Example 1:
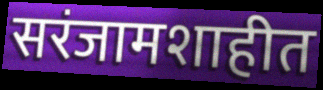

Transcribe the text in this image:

सरंजामशाहीत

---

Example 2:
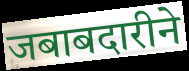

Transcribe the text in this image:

जबाबदारीने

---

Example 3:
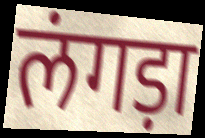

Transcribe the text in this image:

लंगड़ा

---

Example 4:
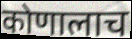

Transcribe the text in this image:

कोणालाच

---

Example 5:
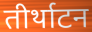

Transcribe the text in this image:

तीर्थाटन